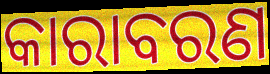
କାରାବରଣ